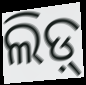
ଲିଡ଼୍